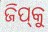
ଜିପ୍‍କୁ